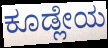
ಕೂಡ್ಲೇಯ